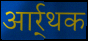
आर्र्थक